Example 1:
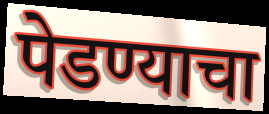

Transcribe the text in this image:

पेडण्याचा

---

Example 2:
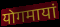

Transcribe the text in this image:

योगमायां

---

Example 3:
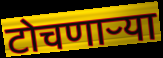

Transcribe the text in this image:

टोचणाऱ्या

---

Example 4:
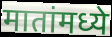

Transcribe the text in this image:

मातांमध्ये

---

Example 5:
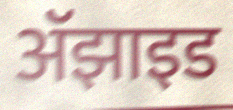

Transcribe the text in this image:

ॲझाइड